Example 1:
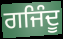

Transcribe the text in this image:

ਗਜਿੰਦੂ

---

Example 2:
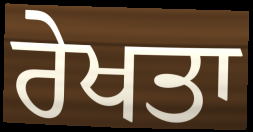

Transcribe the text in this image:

ਰੇਖਤਾ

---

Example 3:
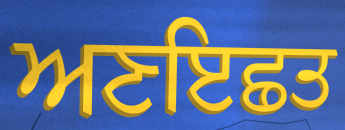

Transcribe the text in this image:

ਅਣਇਛਤ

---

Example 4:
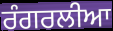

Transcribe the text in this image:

ਰੰਗਰਲੀਆ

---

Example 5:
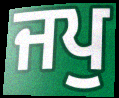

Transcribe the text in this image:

ਜਪੁ